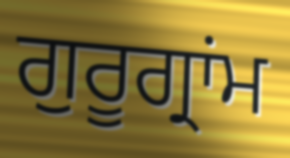
ਗੁਰੂਗ੍ਰਾਂਮ